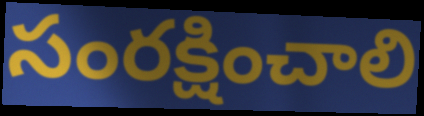
సంరక్షించాలి